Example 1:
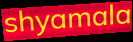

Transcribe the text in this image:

shyamala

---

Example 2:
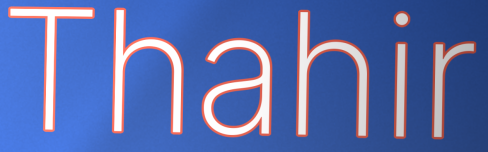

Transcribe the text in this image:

Thahir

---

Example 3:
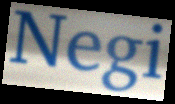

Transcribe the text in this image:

Negi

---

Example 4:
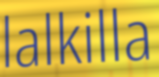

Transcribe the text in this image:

lalkilla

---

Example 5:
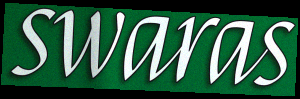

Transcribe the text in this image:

swaras